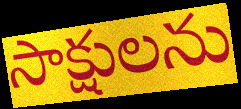
సాక్షులను